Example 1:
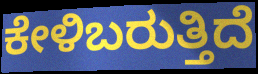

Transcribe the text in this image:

ಕೇಳಿಬರುತ್ತಿದೆ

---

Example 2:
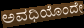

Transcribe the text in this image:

ಅವಧಿಯೊಂದೇ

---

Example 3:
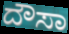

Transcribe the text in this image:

ದೌಸಾ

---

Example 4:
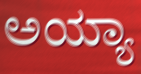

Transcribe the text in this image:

ಅಯ್ಯಾ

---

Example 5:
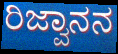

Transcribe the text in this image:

ರಿಜ್ವಾನನ